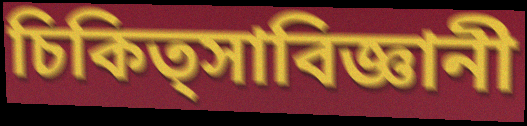
চিকিত্সাবিজ্ঞানী